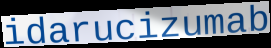
idarucizumab